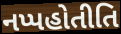
નપ્પહોતીતિ